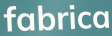
fabrica